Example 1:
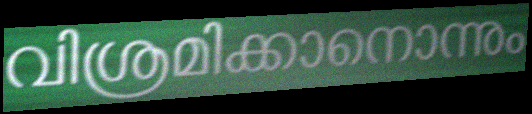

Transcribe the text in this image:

വിശ്രമിക്കാനൊന്നും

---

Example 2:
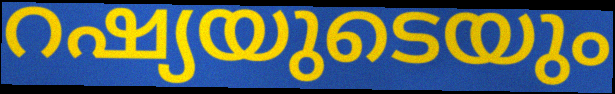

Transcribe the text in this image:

റഷ്യയുടെയും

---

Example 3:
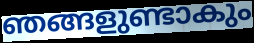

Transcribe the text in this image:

ഞങ്ങളുണ്ടാകും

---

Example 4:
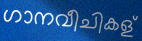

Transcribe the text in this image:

ഗാനവീചികള്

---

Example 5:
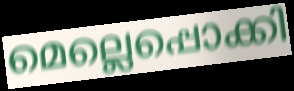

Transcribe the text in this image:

മെല്ലെപ്പൊക്കി